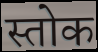
स्तोक